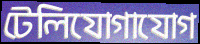
টেলিযোগাযোগ